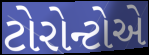
ટોરોન્ટોએ